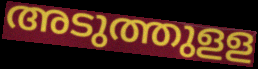
അടുത്തുളള